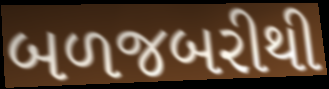
બળજબરીથી